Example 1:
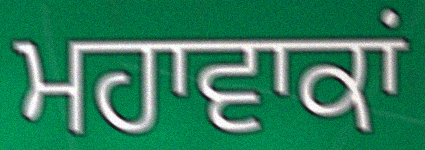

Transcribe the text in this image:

ਮਹਾਵਾਕਾਂ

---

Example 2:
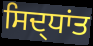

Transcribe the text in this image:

ਸਿਦ੍ਧਾਂਤ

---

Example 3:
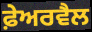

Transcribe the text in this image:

ਫ਼ੇਅਰਵੈਲ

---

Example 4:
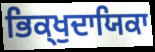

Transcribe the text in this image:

ਭਿਕ੍ਖੁਦਾਯਿਕਾ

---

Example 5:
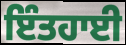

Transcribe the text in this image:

ਇੰਤਹਾਈ